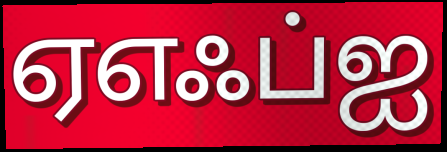
ஏஎஃப்ஐ